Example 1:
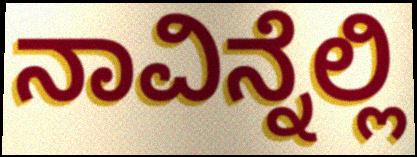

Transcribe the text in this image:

ನಾವಿನ್ನೆಲ್ಲಿ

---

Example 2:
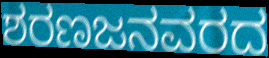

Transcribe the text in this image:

ಶರಣಜನವರದ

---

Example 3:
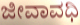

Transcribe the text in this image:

ಜೀವಾವಧಿ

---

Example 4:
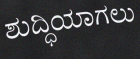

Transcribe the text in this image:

ಶುದ್ಧಿಯಾಗಲು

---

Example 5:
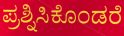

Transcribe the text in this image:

ಪ್ರಶ್ನಿಸಿಕೊಂಡರೆ